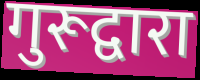
गुरूद्वारा